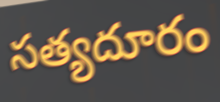
సత్యదూరం